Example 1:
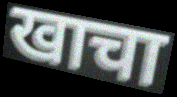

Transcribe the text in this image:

खाचा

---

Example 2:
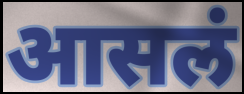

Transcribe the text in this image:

आसलं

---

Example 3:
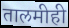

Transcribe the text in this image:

तालमीही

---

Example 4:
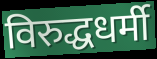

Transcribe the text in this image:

विरुद्धधर्मी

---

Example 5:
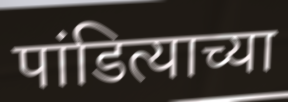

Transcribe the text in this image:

पांडित्याच्या